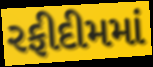
રફીદીમમાં